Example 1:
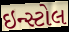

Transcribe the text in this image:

ઇન્સ્ટોલ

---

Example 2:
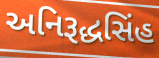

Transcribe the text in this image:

અનિરૂદ્ધસિંહ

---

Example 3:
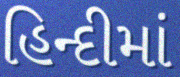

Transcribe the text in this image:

હિન્દીમાં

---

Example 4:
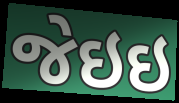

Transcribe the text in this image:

જેઇઇ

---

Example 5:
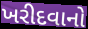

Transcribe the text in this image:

ખરીદવાનો